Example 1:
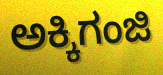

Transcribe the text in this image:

ಅಕ್ಕಿಗಂಜಿ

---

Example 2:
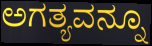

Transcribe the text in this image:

ಅಗತ್ಯವನ್ನೂ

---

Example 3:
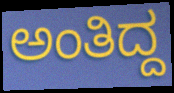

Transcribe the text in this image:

ಅಂತಿದ್ದ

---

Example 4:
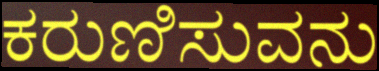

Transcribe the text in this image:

ಕರುಣಿಸುವನು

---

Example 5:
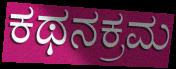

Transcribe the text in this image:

ಕಥನಕ್ರಮ